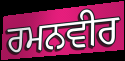
ਰਮਨਵੀਰ